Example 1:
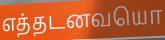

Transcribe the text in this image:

எத்தடனவயொ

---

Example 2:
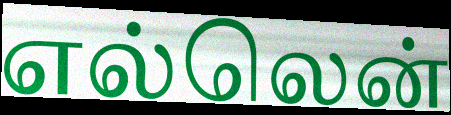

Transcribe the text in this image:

எல்லென்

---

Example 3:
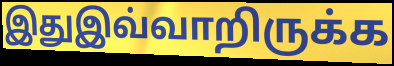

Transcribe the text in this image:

இதுஇவ்வாறிருக்க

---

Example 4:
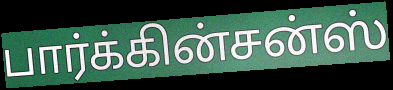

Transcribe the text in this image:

பார்க்கின்சன்ஸ்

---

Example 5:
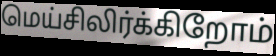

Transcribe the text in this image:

மெய்சிலிர்க்கிறோம்